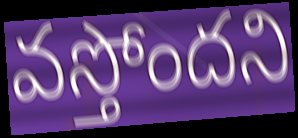
వస్తోందని